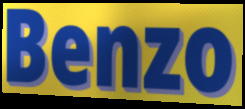
Benzo